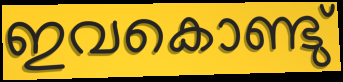
ഇവകൊണ്ടു്